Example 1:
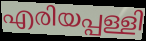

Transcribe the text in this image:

എരിയപ്പള്ളി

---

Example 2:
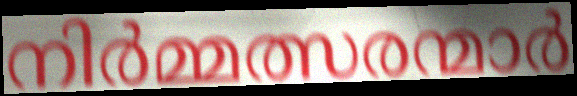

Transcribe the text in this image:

നിർമ്മത്സരന്മാർ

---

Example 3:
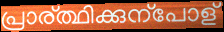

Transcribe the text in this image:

പ്രാര്ത്ഥിക്കുന്പോള്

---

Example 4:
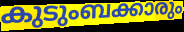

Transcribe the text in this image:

കുടുംബക്കാരും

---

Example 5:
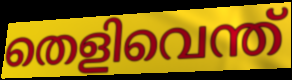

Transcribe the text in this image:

തെളിവെന്ത്